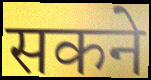
सकने